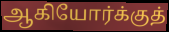
ஆகியோர்க்குத்